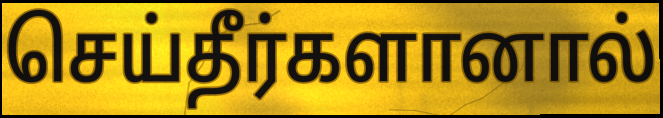
செய்தீர்களானால்